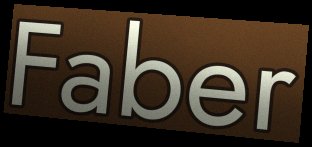
Faber